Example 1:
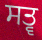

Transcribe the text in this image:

ਸਤ੍ਵ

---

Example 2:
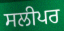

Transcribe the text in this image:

ਸਲੀਪਰ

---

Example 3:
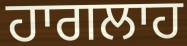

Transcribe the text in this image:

ਹਾਗਲਾਹ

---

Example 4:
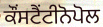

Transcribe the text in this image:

ਕੌਂਸਟੈਂਟੀਨੋਪੋਲ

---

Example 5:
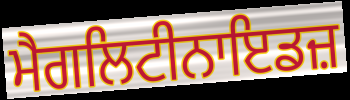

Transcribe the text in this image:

ਮੈਗਲਿਟੀਨਾਇਡਜ਼